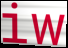
iw